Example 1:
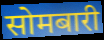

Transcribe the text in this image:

सोमबारी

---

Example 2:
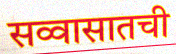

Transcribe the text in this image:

सव्वासातची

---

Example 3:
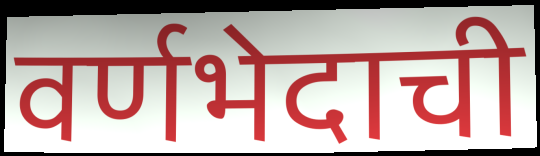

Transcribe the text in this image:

वर्णभेदाची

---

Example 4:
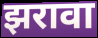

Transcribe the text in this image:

झरावा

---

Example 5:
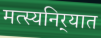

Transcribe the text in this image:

मत्स्यनिर्यात